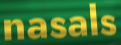
nasals